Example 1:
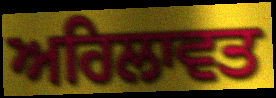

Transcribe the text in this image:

ਅਹਿਲਾਵਤ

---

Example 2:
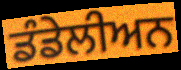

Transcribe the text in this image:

ਡੰਡੇਲੀਅਨ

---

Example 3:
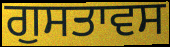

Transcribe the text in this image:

ਗੁਸਤਾਵਸ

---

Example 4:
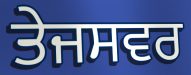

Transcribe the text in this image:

ਤੇਜਸਵਰ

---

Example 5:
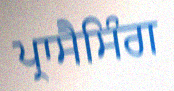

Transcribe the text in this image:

ਪ੍ਰਾਸੈਸਿੰਗ